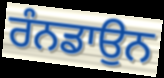
ਰੰਨਡਾਉਨ